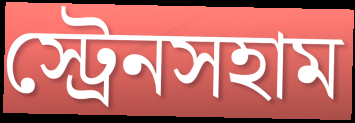
স্ট্রেনসহাম